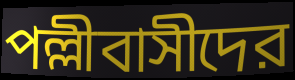
পল্লীবাসীদের